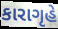
કારાગૃહે